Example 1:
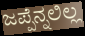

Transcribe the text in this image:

ಜಪ್ಪೆನ್ನಲಿಲ್ಲ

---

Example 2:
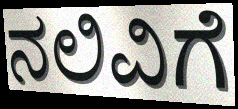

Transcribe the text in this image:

ನಲಿವಿಗೆ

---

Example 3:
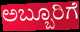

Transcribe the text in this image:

ಅಬ್ಬೂರಿಗೆ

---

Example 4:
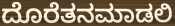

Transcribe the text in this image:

ದೊರೆತನಮಾಡಲಿ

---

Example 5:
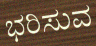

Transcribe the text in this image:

ಭರಿಸುವ